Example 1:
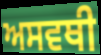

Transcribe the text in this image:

ਅਸਵਥੀ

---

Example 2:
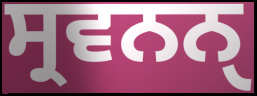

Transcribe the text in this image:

ਸ੍ਰਵਨਨੑ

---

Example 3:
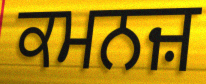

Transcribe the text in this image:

ਕਮਨਜ਼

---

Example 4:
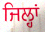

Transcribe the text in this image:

ਜਿਲ੍ਹਾਂ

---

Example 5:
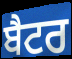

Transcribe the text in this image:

ਬੈਟਰ